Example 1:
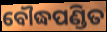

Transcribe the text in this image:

ବୌଦ୍ଧପଣ୍ଡିତ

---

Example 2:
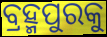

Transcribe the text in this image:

ବ୍ରହ୍ମପୁରକୁ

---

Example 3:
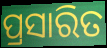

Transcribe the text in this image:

ପ୍ରସାରିତ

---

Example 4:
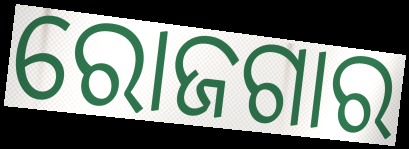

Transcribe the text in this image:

ରୋଜଗାର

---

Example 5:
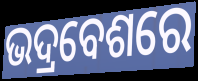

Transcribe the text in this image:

ଭଦ୍ରବେଶରେ